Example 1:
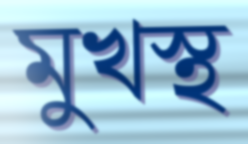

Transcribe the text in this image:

মুখস্থ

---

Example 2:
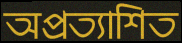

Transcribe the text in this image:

অপ্ৰত্যাশিত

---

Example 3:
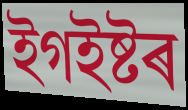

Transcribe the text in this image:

ইগইষ্টৰ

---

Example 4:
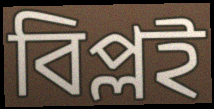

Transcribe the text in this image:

বিপ্লই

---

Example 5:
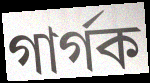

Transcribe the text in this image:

গাৰ্গক